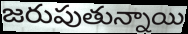
జరుపుతున్నాయి